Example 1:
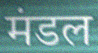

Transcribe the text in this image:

मंडल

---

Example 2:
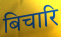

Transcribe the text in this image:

बिचारि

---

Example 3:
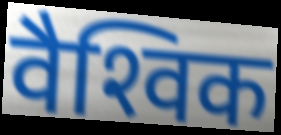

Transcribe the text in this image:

वैश्विक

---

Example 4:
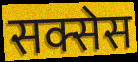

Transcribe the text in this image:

सक्सेस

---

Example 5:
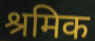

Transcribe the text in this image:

श्रमिक